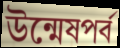
উন্মেষপর্ব